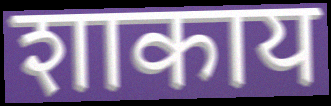
शाकाय